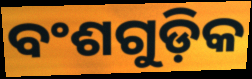
ବଂଶଗୁଡ଼ିକ